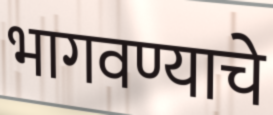
भागवण्याचे